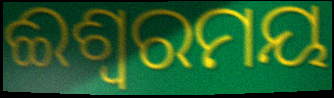
ଈଶ୍ଵରମୟ